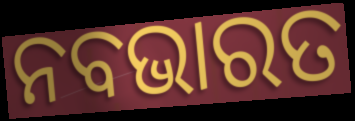
ନବଭାରତ